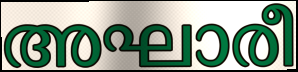
അഘാരീ